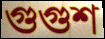
গুগুশ